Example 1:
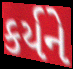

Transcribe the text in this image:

કર્યને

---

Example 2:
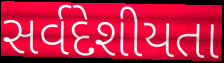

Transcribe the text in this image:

સર્વદેશીયતા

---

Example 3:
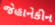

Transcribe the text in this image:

જેહાનેકીન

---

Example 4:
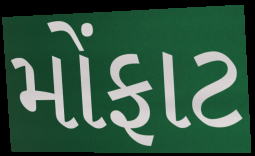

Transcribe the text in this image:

મોંફાટ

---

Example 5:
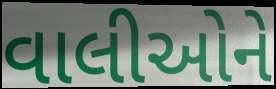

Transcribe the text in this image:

વાલીઓને